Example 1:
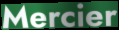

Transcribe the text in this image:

Mercier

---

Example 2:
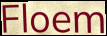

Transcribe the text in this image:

Floem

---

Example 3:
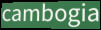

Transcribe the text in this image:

cambogia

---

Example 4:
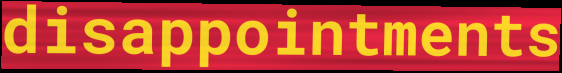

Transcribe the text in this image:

disappointments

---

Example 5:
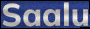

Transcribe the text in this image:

Saalu